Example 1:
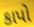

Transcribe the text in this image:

કાપો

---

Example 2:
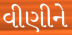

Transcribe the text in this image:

વીણીને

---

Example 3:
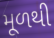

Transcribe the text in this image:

મૂળથી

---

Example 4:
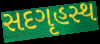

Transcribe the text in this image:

સદગૃહસ્થ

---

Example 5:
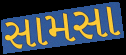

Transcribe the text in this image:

સામસા